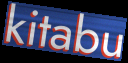
kitabu